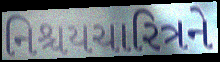
નિશ્ચયચારિત્રને